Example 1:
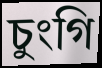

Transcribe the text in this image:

চুংগি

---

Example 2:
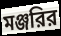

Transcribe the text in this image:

মঞ্জরির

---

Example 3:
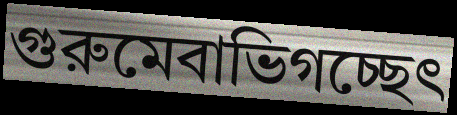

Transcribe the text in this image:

গুরুমেবাভিগচ্ছেৎ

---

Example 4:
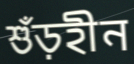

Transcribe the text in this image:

শুঁড়হীন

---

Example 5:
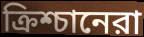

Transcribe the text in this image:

ক্রিশ্চানেরা